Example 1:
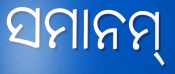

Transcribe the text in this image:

ସମାନମ୍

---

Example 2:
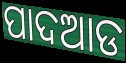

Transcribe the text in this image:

ପାଦଆଡ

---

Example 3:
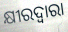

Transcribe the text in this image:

କ୍ଷୀରଦ୍ଵାରା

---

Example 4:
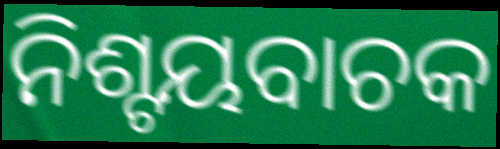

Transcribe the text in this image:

ନିଶ୍ଟୟବାଚକ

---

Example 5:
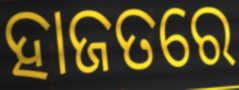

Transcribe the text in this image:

ହାଜତରେ